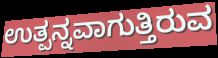
ಉತ್ಪನ್ನವಾಗುತ್ತಿರುವ